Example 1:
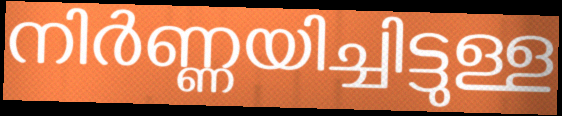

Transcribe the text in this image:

നിർണ്ണയിച്ചിട്ടുള്ള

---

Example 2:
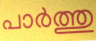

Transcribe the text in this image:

പാർത്തു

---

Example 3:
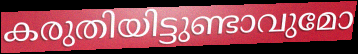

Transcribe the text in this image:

കരുതിയിട്ടുണ്ടാവുമോ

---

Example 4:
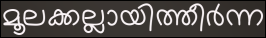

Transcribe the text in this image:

മൂലക്കല്ലായിത്തീർന്ന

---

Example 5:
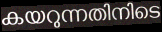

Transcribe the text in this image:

കയറുന്നതിനിടെ